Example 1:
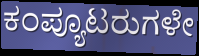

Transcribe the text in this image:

ಕಂಪ್ಯೂಟರುಗಳೇ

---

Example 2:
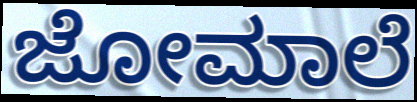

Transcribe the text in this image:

ಜೋಮಾಲೆ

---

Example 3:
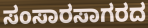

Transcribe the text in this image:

ಸಂಸಾರಸಾಗರದ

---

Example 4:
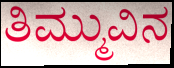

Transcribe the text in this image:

ತಿಮ್ಮುವಿನ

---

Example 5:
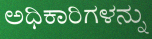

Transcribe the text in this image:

ಅಧಿಕಾರಿಗಳನ್ನು